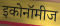
इकोनॉमीज